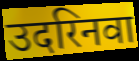
उदरिनवा